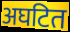
अघटित